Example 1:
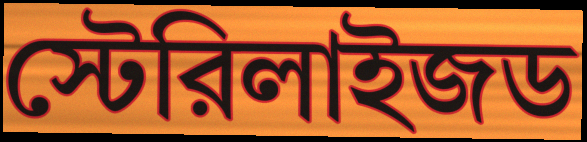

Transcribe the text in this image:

স্টেরিলাইজড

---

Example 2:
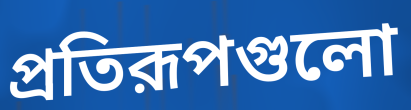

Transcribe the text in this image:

প্রতিরূপগুলো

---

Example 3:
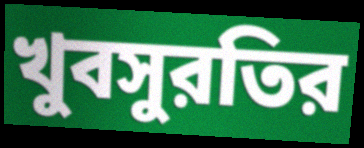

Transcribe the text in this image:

খুবসুরতির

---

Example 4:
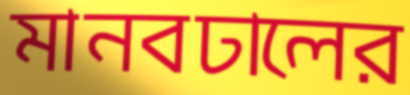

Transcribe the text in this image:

মানবঢালের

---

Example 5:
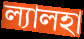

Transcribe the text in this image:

ল্যালহা